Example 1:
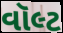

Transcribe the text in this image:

વૉલ્ટ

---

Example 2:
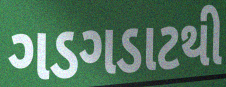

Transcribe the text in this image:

ગડગડાટથી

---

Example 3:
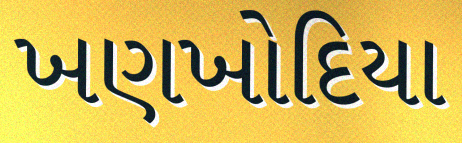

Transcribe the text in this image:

ખણખોદિયા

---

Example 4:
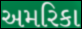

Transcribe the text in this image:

અમરિકા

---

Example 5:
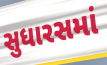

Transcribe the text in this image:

સુધારસમાં